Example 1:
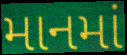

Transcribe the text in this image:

માનમાં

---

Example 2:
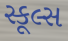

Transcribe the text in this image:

સ્કૂલ્સ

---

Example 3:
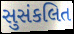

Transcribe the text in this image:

સુસંકલિત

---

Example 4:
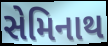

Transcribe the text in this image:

સેમિનાથ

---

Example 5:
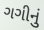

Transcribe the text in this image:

ગગીનું